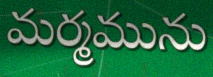
మర్మమును